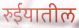
रुईयातील